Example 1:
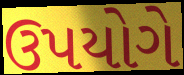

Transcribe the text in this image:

ઉપયોગે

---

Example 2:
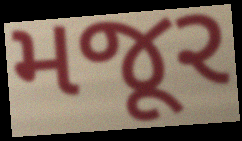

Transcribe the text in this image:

મજૂર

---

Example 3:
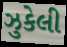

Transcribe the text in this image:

ઝુકેલી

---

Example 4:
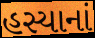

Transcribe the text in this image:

હસ્યાનાં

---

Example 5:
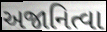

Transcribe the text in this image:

અજાનિત્વા